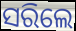
ସରିଲେ